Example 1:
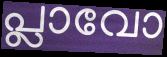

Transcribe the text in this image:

പ്ലാവോ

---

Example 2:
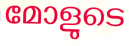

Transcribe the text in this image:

മോളുടെ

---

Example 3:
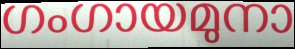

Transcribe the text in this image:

ഗംഗായമുനാ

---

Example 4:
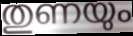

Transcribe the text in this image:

തുണയും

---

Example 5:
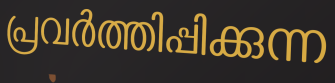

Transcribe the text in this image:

പ്രവർത്തിപ്പിക്കുന്ന